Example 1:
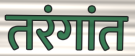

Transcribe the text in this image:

तरंगांत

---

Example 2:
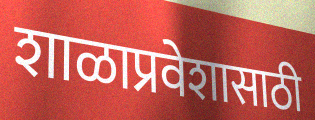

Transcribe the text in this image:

शाळाप्रवेशासाठी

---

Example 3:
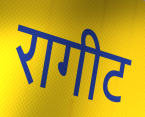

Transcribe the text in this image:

रागीट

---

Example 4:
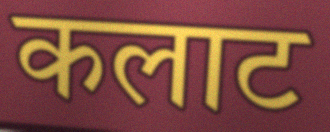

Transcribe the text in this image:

कलाट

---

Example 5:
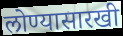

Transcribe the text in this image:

लोण्यासारखी